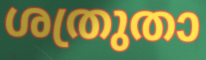
ശത്രുതാ